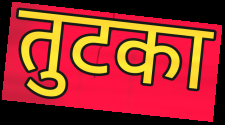
तुटका